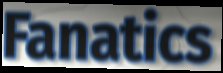
Fanatics